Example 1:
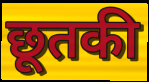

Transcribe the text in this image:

छूतकी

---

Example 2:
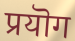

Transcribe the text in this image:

प्रयॊग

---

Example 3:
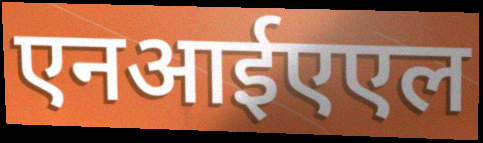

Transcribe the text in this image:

एनआईएएल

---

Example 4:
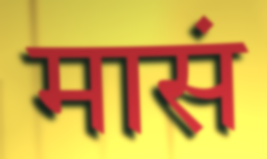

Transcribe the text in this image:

मासं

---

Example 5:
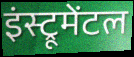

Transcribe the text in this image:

इंस्ट्रूमेंटल